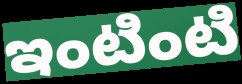
ఇంటింటి